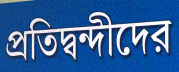
প্রতিদ্বন্দীদের